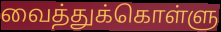
வைத்துக்கொள்ளு